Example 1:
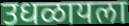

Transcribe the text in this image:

उधळायला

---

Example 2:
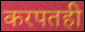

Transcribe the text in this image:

करपतही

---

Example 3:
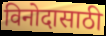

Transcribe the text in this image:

विनोदासाठी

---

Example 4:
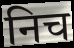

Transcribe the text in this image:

निच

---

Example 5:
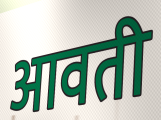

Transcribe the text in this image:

आवती